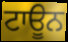
ਟਾਊਨ